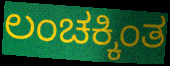
ಲಂಚಕ್ಕಿಂತ